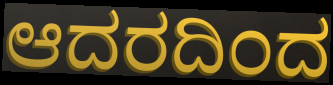
ಆದರದಿಂದ